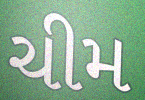
ચીમ